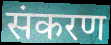
संकरण